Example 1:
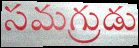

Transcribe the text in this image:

సమగ్రుడు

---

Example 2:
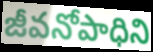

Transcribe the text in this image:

జీవనోపాధిని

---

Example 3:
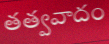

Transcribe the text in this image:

తత్వవాదం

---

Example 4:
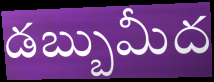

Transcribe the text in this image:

డబ్బుమీద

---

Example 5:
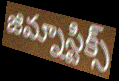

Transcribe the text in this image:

జిమ్నాస్టిక్స్